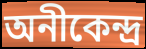
অনীকেন্দ্র